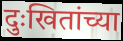
दुःखितांच्या